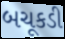
બચૂકડી